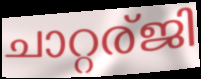
ചാറ്റര്ജി